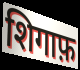
शिगाफ़